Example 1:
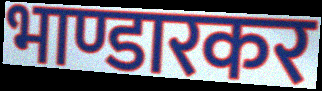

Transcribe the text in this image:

भाण्डारकर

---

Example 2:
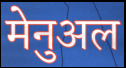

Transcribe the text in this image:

मेनुअल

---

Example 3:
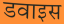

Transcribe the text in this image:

डवाइस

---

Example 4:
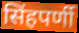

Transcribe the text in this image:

सिंहपर्णी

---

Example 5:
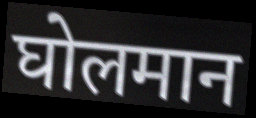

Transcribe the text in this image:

घोलमान